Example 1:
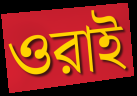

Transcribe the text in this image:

ওরাই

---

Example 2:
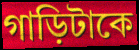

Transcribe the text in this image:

গাড়িটাকে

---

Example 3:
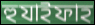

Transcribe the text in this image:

হুযাইফাহ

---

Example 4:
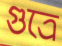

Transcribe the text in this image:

গুত্রে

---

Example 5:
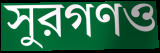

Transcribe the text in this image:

সুরগণও